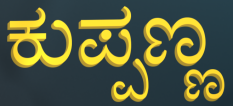
ಕುಪ್ಪಣ್ಣ